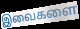
இவைகளை